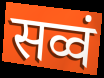
सव्वं